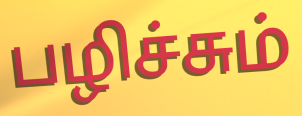
பழிச்சும்